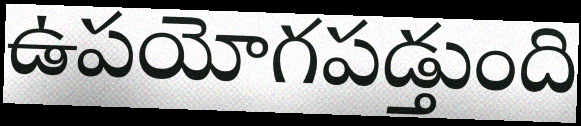
ఉపయోగపడ్తుంది